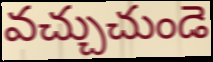
వచ్చుచుండె